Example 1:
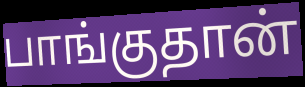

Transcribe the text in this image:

பாங்குதான்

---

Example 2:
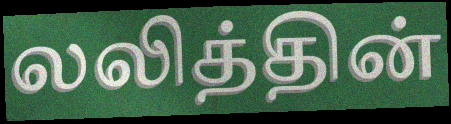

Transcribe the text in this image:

லலித்தின்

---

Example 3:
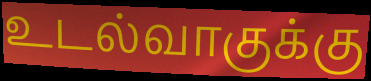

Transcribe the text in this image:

உடல்வாகுக்கு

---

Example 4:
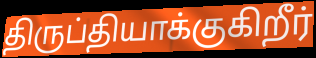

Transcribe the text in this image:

திருப்தியாக்குகிறீர்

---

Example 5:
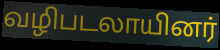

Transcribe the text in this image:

வழிபடலாயினர்